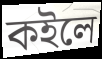
কইলে